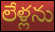
లేళ్లను